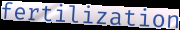
fertilization